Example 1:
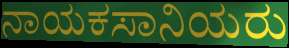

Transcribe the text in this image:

ನಾಯಕಸಾನಿಯರು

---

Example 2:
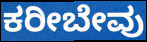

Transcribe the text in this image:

ಕರೀಬೇವು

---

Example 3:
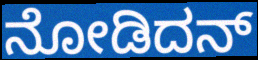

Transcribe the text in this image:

ನೋಡಿದನ್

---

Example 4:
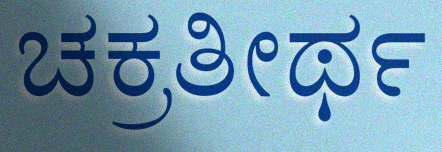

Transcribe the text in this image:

ಚಕ್ರತೀರ್ಥ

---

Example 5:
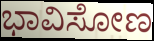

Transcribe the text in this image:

ಭಾವಿಸೋಣ